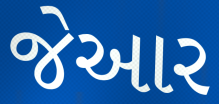
જેઆર